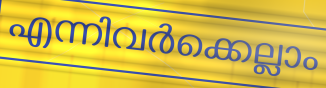
എന്നിവർക്കെല്ലാം